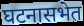
घटनासभेत